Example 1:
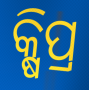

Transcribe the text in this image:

କ୍ଷିପ୍ର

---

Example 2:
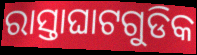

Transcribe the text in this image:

ରାସ୍ତାଘାଟଗୁଡିକ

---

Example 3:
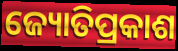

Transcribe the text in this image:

ଜ୍ୟୋତିପ୍ରକାଶ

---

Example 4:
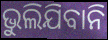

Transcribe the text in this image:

ଭୁଲିଯିବାନି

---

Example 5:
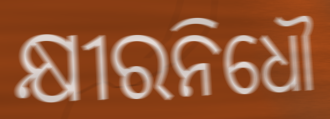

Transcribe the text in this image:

କ୍ଷୀରନିଧୌ